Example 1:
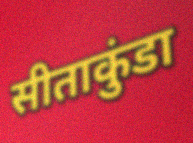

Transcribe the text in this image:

सीताकुंडा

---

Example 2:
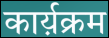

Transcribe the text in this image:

कार्य़क्रम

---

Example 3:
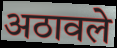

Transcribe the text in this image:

अठावले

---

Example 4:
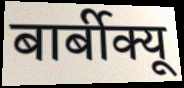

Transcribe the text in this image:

बार्बीक्यू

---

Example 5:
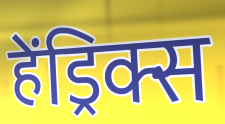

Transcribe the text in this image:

हेंड्रिक्स